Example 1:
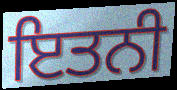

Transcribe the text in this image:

ਇਤਨੀ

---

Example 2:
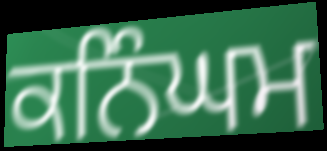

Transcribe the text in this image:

ਕਨਿੰਘਮ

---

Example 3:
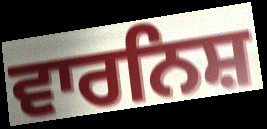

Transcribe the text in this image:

ਵਾਰਨਿਸ਼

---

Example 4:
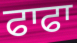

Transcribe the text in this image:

ਫਾਫਾ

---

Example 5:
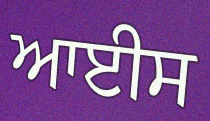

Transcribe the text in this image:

ਆਈਸ